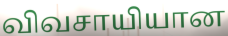
விவசாயியான